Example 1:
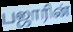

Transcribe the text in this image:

பஜாரின்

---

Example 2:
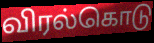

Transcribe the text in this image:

விரல்கொடு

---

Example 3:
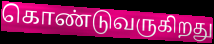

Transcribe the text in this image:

கொண்டுவருகிறது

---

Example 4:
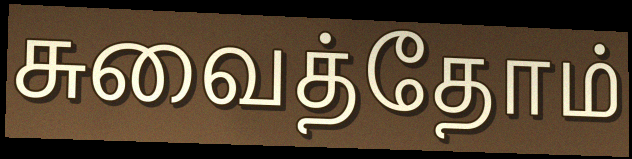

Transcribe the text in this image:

சுவைத்தோம்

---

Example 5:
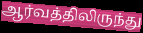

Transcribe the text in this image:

ஆர்வத்திலிருந்து